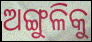
ଅଙ୍ଗୁଳିକୁ